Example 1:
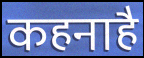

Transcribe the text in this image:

कहनाहै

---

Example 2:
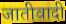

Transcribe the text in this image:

जातीवादी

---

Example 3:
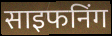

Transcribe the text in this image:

साइफनिंग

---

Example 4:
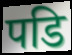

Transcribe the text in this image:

पडि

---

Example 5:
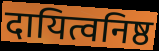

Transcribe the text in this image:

दायित्वनिष्ठ